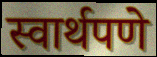
स्वार्थपणे